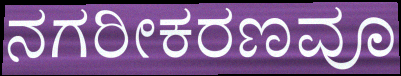
ನಗರೀಕರಣವೂ